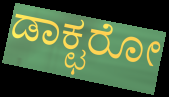
ಡಾಕ್ಟರೋ